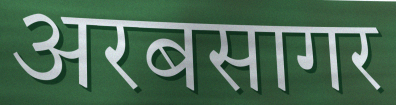
अरबसागर